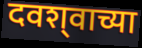
दवश्वाच्या